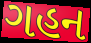
ગહન